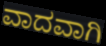
ವಾದವಾಗಿ